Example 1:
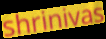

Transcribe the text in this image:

shrinivas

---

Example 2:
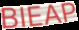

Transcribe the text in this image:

BIEAP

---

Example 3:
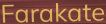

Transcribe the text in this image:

Farakate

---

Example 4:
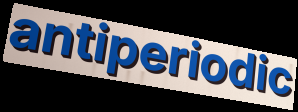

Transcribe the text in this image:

antiperiodic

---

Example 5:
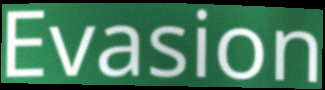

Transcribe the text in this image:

Evasion